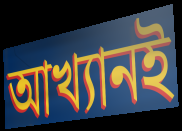
আখ্যানই